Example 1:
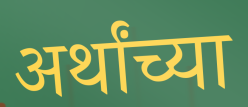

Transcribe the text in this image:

अर्थांच्या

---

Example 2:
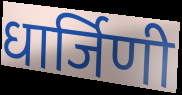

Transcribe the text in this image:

धार्जिणी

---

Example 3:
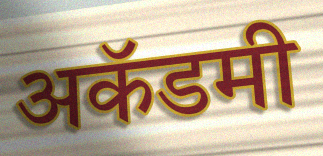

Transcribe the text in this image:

अकॅडमी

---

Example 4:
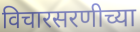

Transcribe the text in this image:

विचारसरणीच्या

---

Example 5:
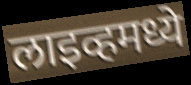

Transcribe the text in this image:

लाइव्हमध्ये